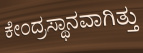
ಕೇಂದ್ರಸ್ಥಾನವಾಗಿತ್ತು